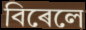
বিৰেলে